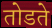
तोडते